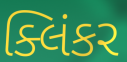
ક્લિંકર